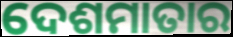
ଦେଶମାତାର